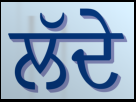
ਲੱਦੇ